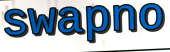
swapno